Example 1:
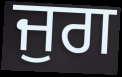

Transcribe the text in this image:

ਜੁਗ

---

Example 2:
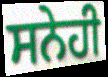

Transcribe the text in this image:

ਸਨੇਹੀ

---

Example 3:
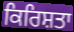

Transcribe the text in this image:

ਕਿਰਿਸ਼ਤਾ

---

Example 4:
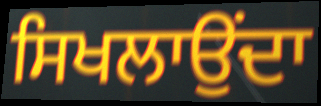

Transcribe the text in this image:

ਸਿਖਲਾਉਂਦਾ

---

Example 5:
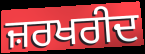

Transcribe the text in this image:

ਜ਼ਰਖਰੀਦ